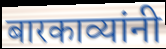
बारकाव्यांनी